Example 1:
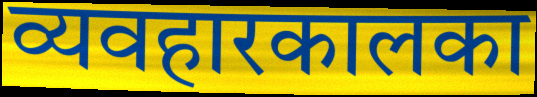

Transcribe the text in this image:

व्यवहारकालका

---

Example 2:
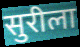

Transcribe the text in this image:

सुरीला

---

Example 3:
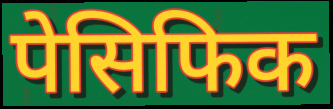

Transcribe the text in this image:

पेसिफिक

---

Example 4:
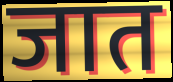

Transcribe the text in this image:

जात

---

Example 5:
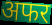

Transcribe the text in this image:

अफर